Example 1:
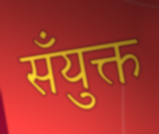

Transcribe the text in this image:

सँयुक्त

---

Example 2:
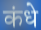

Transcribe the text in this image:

कंधे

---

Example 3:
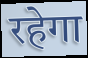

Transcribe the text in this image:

रहेगा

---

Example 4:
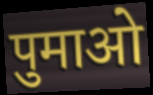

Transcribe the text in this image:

पुमाओ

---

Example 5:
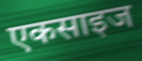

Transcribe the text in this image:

एकसाइज